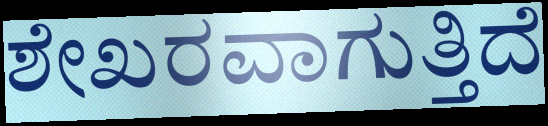
ಶೇಖರವಾಗುತ್ತಿದೆ